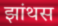
झांथस